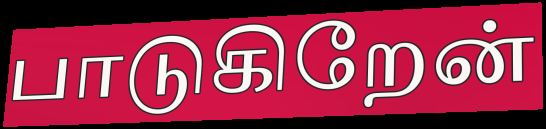
பாடுகிறேன்